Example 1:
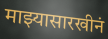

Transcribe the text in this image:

माझ्यासारखीनं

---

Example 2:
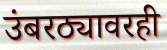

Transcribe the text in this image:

उंबरठ्यावरही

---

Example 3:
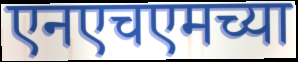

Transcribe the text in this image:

एनएचएमच्या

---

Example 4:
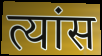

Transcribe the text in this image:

त्यांस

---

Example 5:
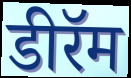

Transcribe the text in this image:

डीरॅम